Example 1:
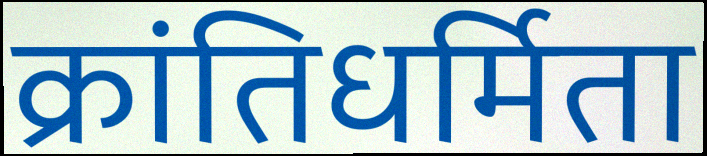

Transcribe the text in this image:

क्रांतिधर्मिता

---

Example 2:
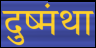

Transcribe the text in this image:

दुष्मंथा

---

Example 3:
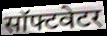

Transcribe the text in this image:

सॉफ्टवेटर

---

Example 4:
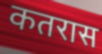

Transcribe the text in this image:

कतरास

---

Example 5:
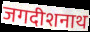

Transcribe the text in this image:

जगदीशनाथ